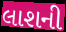
લાશની